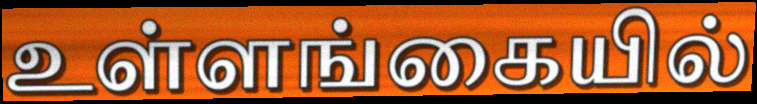
உள்ளங்கையில்